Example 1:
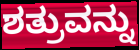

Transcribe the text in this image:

ಶತ್ರುವನ್ನು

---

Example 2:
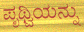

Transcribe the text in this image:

ಪೃಥ್ವಿಯನ್ನು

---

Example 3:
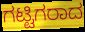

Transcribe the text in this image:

ಗಟ್ಟಿಗರಾದ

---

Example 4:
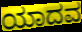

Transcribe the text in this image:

ಯಾದವ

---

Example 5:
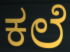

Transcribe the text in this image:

ಕಲೆ